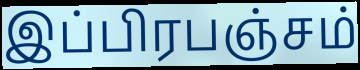
இப்பிரபஞ்சம்